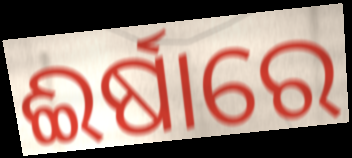
ଈର୍ଷାରେ